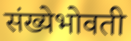
संख्येभोवती